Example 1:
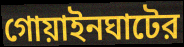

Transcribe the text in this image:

গোয়াইনঘাটের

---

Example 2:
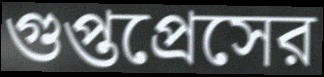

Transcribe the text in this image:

গুপ্তপ্রেসের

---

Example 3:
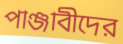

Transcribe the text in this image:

পাঞ্জাবীদের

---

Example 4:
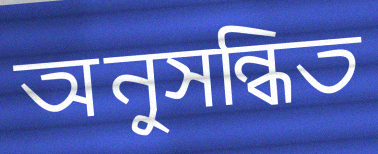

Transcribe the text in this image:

অনুসন্ধিত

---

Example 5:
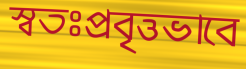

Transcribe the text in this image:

স্বতঃপ্রবৃত্তভাবে